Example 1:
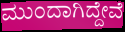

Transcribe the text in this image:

ಮುಂದಾಗಿದ್ದೇವೆ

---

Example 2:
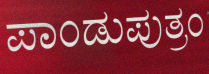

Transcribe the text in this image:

ಪಾಂಡುಪುತ್ರಂ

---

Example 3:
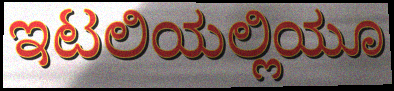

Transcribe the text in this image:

ಇಟಲಿಯಲ್ಲಿಯೂ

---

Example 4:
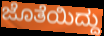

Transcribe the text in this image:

ಜೊತೆಯಿದ್ದು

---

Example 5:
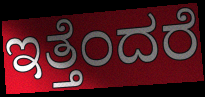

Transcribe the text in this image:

ಇತ್ತೆಂದರೆ